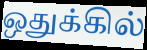
ஒதுக்கில்